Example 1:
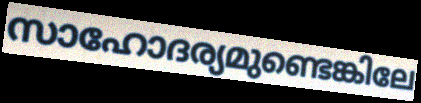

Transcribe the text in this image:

സാഹോദര്യമുണ്ടെങ്കിലേ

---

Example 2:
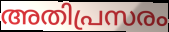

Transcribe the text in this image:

അതിപ്രസരം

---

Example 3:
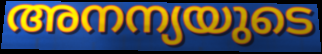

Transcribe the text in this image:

അനന്യയുടെ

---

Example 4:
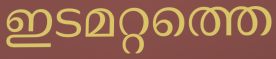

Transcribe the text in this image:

ഇടമറ്റത്തെ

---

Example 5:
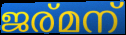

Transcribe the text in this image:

ജര്മന്